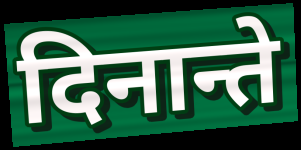
दिनान्ते